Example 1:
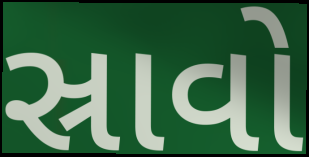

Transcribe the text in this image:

સ્રાવો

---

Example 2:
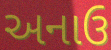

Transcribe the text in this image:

અનાઉ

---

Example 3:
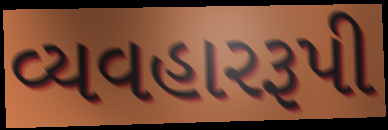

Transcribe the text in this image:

વ્યવહારરૂપી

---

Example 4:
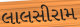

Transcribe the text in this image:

લાલસીરામ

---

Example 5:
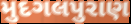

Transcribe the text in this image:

મુદગલપુરાણ